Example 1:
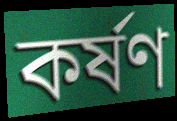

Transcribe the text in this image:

কর্ষণ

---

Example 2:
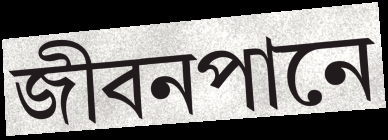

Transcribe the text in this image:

জীবনপানে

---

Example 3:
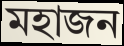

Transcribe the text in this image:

মহাজন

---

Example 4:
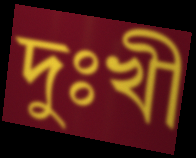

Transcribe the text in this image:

দুঃখী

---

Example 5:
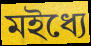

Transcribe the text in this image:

মইধ্যে